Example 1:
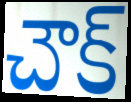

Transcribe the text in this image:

చౌక్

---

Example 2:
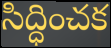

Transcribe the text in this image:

సిద్ధించక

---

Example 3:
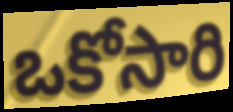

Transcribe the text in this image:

ఒకోసారి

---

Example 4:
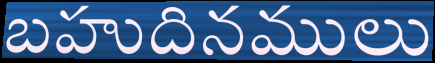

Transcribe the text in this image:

బహుదినములు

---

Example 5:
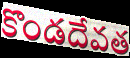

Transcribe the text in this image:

కొండదేవత